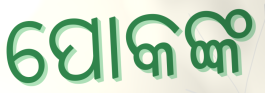
ପୋକଙ୍କ